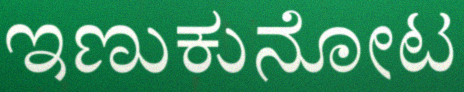
ಇಣುಕುನೋಟ